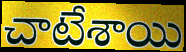
చాటేశాయి